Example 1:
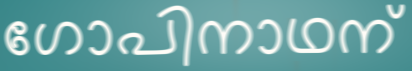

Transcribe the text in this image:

ഗോപിനാഥന്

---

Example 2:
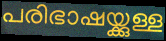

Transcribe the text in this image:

പരിഭാഷയ്ക്കുള്ള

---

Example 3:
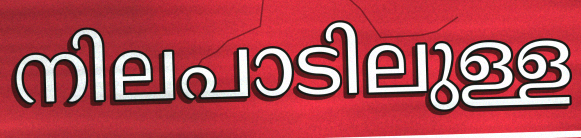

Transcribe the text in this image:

നിലപാടിലുള്ള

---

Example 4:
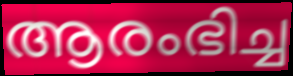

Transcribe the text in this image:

ആരംഭിച്ച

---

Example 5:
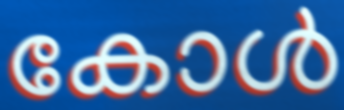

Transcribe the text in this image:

കോൾ